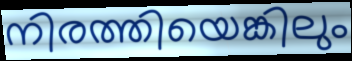
നിരത്തിയെങ്കിലും